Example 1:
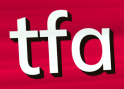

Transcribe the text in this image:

tfa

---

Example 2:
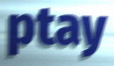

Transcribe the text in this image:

ptay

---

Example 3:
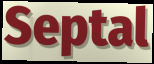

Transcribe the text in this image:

Septal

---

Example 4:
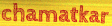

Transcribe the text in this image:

chamatkar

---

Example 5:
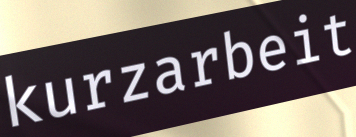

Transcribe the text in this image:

kurzarbeit